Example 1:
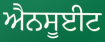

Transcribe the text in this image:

ਐਨਸੂਈਟ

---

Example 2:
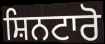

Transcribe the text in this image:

ਸ਼ਿਨਟਾਰੋ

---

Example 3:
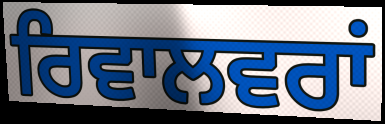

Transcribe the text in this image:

ਰਿਵਾਲਵਰਾਂ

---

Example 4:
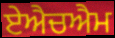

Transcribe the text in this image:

ਏਐਚਐਮ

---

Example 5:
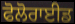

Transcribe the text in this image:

ਫੋਲੋਰਾਈਡ